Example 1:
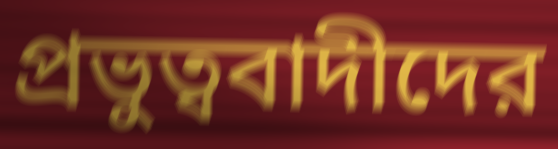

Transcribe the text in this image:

প্রভুত্ববাদীদের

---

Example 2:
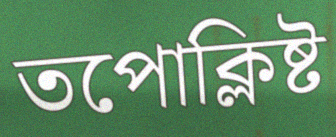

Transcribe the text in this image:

তপোক্লিষ্ট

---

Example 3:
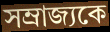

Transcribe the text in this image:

সম্রাজ্যকে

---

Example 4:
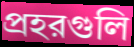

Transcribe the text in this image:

প্রহরগুলি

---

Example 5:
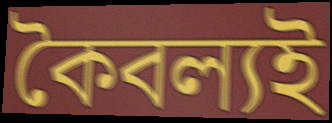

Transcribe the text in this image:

কৈবল্যই